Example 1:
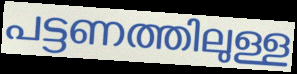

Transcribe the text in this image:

പട്ടണത്തിലുള്ള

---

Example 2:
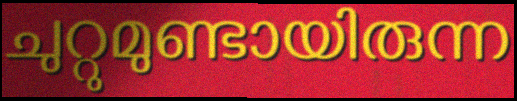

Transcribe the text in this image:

ചുറ്റുമുണ്ടായിരുന്ന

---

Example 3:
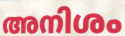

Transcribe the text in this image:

അനിശം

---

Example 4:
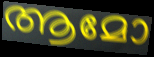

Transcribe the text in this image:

ആമോ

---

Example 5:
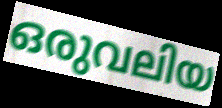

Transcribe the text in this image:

ഒരുവലിയ